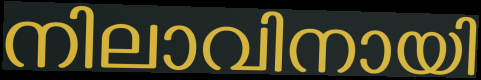
നിലാവിനായി